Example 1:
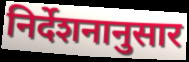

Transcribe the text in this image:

निर्देशनानुसार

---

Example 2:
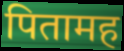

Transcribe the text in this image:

पितामह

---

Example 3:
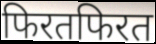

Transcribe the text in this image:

फिरतफिरत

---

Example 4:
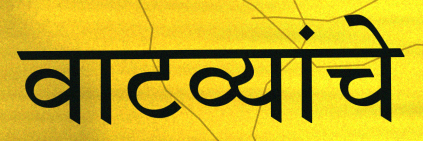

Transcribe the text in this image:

वाटव्यांचे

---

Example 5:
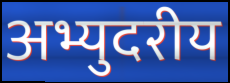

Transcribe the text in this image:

अभ्युदरीय